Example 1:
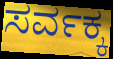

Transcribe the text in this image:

ಸರ್ವಕ್ಕ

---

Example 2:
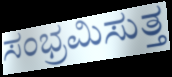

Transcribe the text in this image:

ಸಂಭ್ರಮಿಸುತ್ತ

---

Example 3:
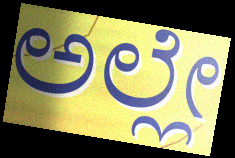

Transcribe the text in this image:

ಅಲ್ಲೇ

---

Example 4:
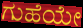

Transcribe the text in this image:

ಗುಹೆಯೇ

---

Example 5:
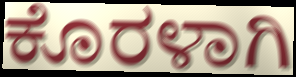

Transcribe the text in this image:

ಕೊರಳಾಗಿ